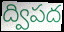
ద్విపద